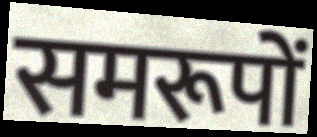
समरूपों